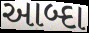
આબ્દા